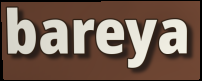
bareya